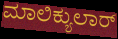
ಮಾಲಿಕ್ಯುಲಾರ್